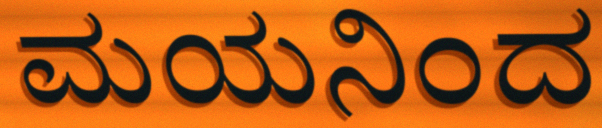
ಮಯನಿಂದ